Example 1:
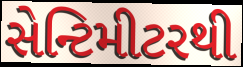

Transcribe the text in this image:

સેન્ટિમીટરથી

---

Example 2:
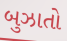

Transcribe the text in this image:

બુઝાતો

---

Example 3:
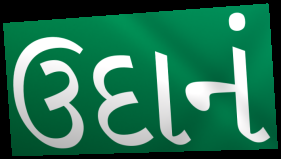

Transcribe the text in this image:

ઉદાનં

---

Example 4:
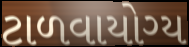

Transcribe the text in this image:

ટાળવાયોગ્ય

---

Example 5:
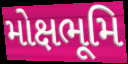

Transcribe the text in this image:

મોક્ષભૂમિ